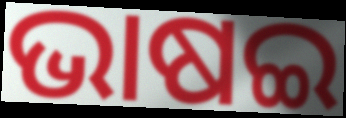
ଭାଷଇ